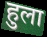
हुला